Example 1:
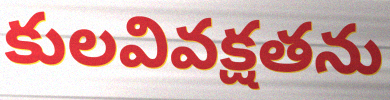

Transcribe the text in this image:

కులవివక్షతను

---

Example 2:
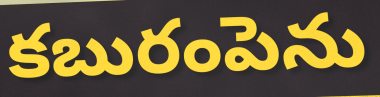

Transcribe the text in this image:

కబురంపెను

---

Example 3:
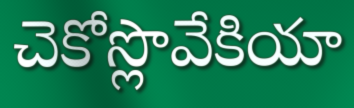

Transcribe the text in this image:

చెకోస్లొవేకియా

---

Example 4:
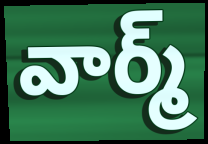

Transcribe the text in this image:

వార్మ్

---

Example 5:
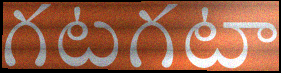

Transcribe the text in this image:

గటగటా